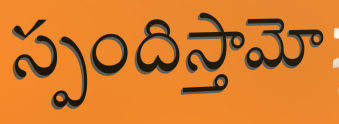
స్పందిస్తామో